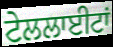
ਟੇਲਲਾਈਟਾਂ